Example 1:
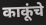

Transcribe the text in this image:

काकूंचे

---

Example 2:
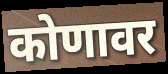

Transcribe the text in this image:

कोणावर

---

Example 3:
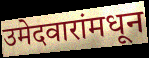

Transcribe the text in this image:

उमेदवारांमधून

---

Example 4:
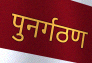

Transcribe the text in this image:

पुनर्गठण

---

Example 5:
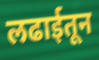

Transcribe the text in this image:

लढाईतून